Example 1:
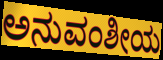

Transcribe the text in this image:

ಅನುವಂಶೀಯ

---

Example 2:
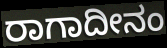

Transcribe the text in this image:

ರಾಗಾದೀನಂ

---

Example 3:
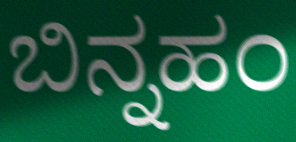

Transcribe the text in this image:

ಬಿನ್ನಹಂ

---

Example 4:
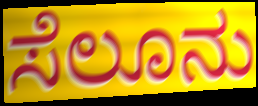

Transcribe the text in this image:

ಸೆಲೂನು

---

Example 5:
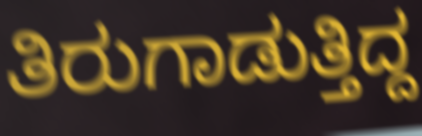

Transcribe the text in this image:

ತಿರುಗಾಡುತ್ತಿದ್ದ